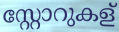
സ്റ്റോറുകള്